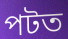
পটত